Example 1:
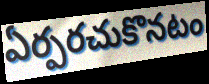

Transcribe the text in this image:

ఏర్పరచుకొనటం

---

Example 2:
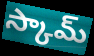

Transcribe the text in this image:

స్కామ్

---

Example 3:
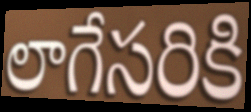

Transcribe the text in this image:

లాగేసరికి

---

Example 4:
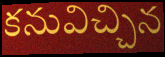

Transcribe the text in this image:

కనువిచ్చిన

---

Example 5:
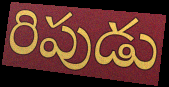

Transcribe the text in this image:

రిపుడు